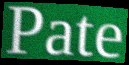
Pate